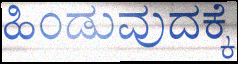
ಹಿಂಡುವುದಕ್ಕೆ